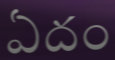
ఏదం